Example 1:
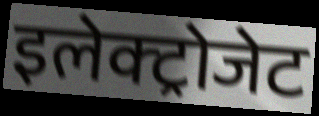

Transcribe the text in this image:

इलेक्ट्रोजेट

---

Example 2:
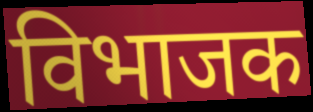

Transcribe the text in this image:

विभाजक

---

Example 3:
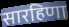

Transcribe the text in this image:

सारहिणा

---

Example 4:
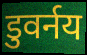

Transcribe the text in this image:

डुवर्नय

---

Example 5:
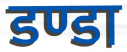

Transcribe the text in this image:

डण्डा